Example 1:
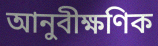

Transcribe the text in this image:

আনুবীক্ষণিক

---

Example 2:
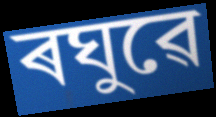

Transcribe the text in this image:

ৰঘুৱে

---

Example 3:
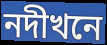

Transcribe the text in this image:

নদীখনে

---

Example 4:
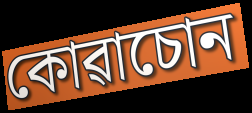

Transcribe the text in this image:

কোৱাচোন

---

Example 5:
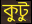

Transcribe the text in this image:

কুটু